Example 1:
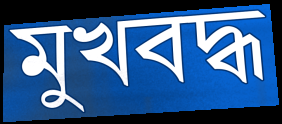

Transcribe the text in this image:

মুখবদ্ধ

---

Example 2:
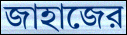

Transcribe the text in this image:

জাহাজের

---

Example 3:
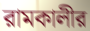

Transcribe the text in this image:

রামকালীর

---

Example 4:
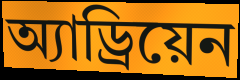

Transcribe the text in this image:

অ্যাড্রিয়েন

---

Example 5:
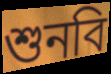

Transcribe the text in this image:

শুনবি